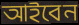
আইবেন